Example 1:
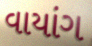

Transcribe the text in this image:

વાયાંગ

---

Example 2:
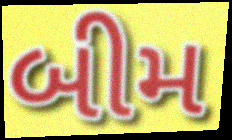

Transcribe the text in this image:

બીમ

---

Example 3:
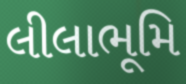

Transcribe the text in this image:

લીલાભૂમિ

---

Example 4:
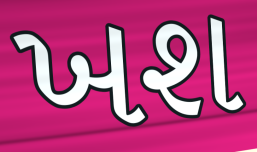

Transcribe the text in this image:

ખશ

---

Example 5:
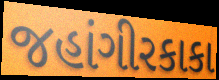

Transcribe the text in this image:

જહાંગીરકાકા